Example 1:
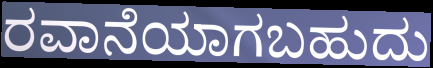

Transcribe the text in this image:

ರವಾನೆಯಾಗಬಹುದು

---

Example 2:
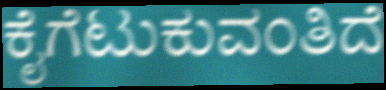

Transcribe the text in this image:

ಕೈಗೆಟುಕುವಂತಿದೆ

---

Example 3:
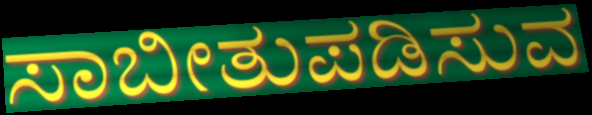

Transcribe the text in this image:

ಸಾಬೀತುಪಡಿಸುವ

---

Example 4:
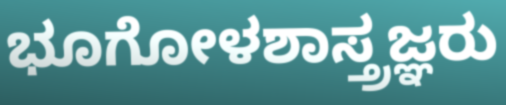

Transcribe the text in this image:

ಭೂಗೋಳಶಾಸ್ತ್ರಜ್ಞರು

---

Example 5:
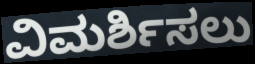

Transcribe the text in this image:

ವಿಮರ್ಶಿಸಲು